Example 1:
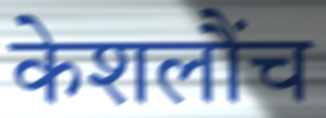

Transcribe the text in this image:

केशलौंच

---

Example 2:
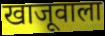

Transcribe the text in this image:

खाजूवाला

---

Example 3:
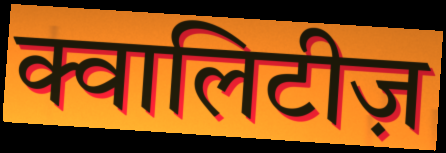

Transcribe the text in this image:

क्वालिटीज़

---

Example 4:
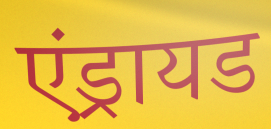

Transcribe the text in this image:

एंड्रायड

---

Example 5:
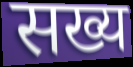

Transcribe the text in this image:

सख्य